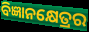
ବିଜ୍ଞାନକ୍ଷେତ୍ରର